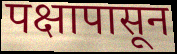
पक्षापासून